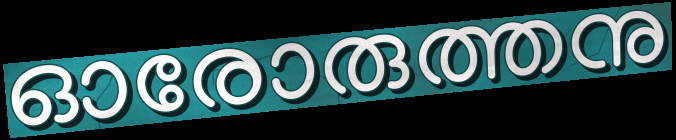
ഓരോരുത്തനു